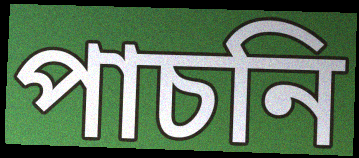
পাচনি